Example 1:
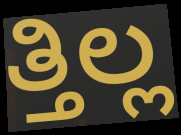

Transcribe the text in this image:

ತ್ತಿಲ್ಲ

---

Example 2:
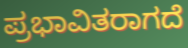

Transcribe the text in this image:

ಪ್ರಭಾವಿತರಾಗದೆ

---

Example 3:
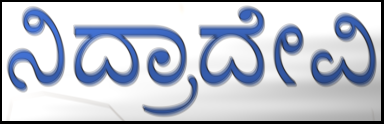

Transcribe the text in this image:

ನಿದ್ರಾದೇವಿ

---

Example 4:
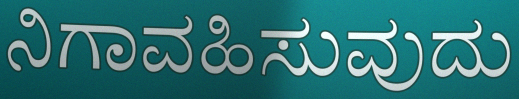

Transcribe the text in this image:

ನಿಗಾವಹಿಸುವುದು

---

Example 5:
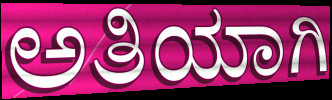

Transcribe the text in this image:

ಅತಿಯಾಗಿ